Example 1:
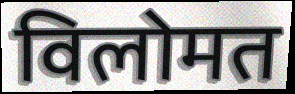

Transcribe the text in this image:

विलोमत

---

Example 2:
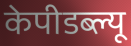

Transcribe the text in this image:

केपीडब्ल्यू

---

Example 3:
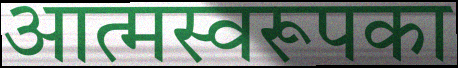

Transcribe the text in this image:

आत्मस्वरूपका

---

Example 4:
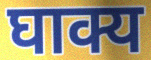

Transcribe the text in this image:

घाक्य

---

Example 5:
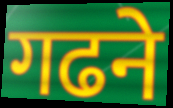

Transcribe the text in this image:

गढने